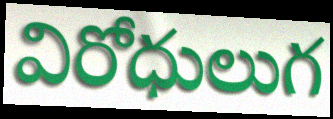
విరోధులుగ